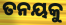
ତନୟକୁ